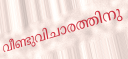
വീണ്ടുവിചാരത്തിനു